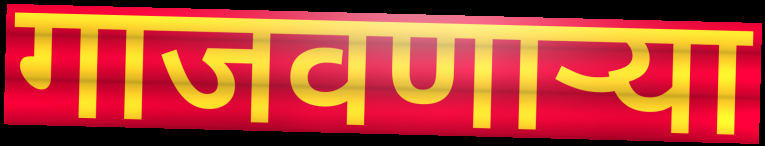
गाजवणाऱ्या